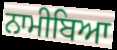
ਨਾਮੀਬਿਆ